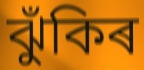
ঝুঁকিৰ